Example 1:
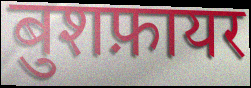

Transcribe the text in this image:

बुशफ़ायर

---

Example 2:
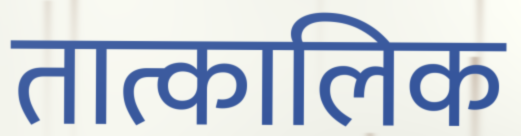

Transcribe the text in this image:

तात्कालिक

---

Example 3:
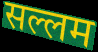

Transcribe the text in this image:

सल्‍लम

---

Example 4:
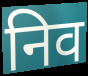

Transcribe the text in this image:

निव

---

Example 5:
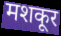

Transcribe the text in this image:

मशकूर